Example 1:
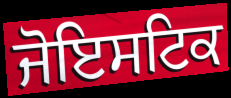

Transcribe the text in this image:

ਜੋਇਸਟਿਕ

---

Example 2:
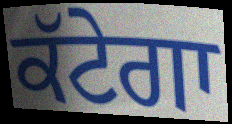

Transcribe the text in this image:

ਕੱਟੇਗਾ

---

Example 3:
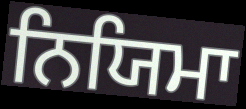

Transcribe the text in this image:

ਨਿਯਿਮਾ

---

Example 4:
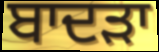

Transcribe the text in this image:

ਬਾਦੜਾ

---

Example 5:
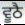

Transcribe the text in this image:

ਵੂਠੈ